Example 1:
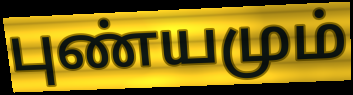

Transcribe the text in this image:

புண்யமும்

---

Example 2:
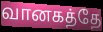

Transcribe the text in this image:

வானகத்தே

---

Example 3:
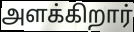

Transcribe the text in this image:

அளக்கிறார்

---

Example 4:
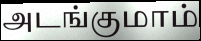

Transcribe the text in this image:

அடங்குமாம்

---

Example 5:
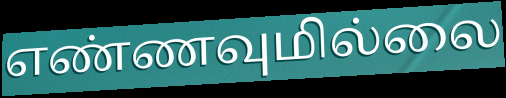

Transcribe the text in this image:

எண்ணவுமில்லை